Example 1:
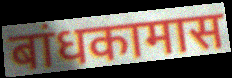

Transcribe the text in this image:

बांधकामास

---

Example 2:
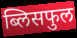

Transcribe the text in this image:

ब्लिसफुल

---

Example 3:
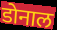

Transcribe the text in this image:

डोनाल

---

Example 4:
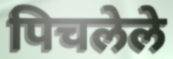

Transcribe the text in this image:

पिचलेले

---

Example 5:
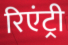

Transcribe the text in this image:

रिएंट्री